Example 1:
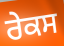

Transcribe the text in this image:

ਰੇਕਸ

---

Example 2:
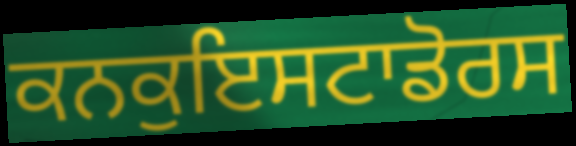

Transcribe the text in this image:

ਕਨਕੁਇਸਟਾਡੋਰਸ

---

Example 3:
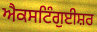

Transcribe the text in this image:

ਐਕਸਟਿੰਗੁਈਸ਼ਰ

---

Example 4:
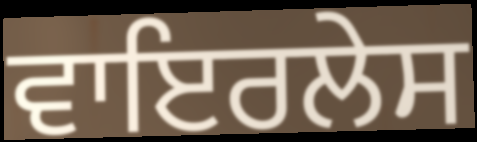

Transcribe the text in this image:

ਵਾਇਰਲੇਸ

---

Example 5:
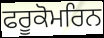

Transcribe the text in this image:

ਫਰੂਕੋਮਰਿਨ